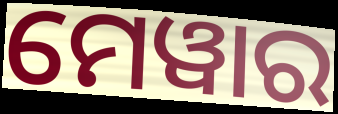
ମେୱାର